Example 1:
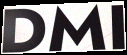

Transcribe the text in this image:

DMI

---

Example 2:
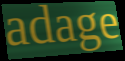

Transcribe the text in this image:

adage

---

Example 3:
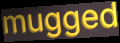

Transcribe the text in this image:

mugged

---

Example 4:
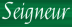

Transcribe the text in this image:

Seigneur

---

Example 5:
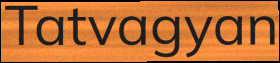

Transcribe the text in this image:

Tatvagyan